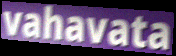
vahavata